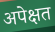
अपेक्षत